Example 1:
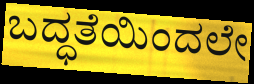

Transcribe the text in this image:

ಬದ್ಧತೆಯಿಂದಲೇ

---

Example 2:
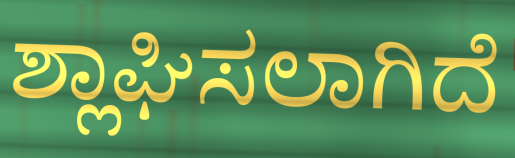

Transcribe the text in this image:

ಶ್ಲಾಘಿಸಲಾಗಿದೆ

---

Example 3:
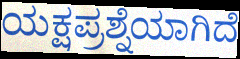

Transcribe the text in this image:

ಯಕ್ಷಪ್ರಶ್ನೆಯಾಗಿದೆ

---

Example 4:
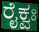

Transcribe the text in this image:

ರೈಕ್ವಃ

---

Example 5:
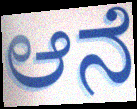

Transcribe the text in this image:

ಆನೆ